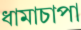
ধামাচাপা